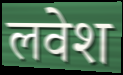
लवेश